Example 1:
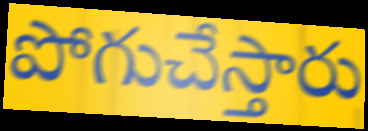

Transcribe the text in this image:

పోగుచేస్తారు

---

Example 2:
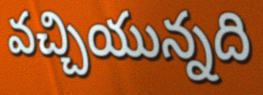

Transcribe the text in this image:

వచ్చియున్నది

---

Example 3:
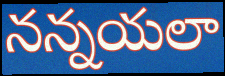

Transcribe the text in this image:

నన్నయలా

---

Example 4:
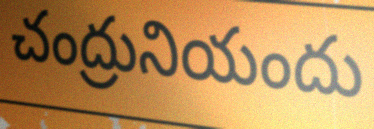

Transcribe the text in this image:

చంద్రునియందు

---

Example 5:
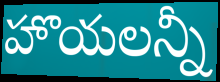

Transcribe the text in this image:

హొయలన్నీ